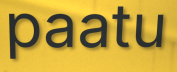
paatu